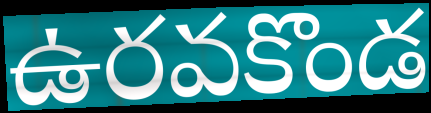
ఉరవకొండ